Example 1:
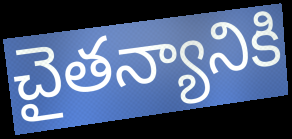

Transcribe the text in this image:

చైతన్యానికి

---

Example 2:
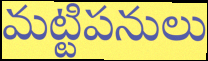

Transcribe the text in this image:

మట్టిపనులు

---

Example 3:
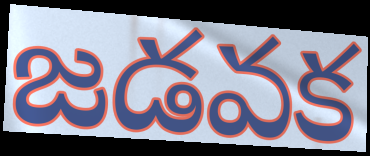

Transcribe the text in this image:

జడవక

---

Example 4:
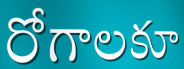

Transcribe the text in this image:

రోగాలకూ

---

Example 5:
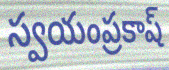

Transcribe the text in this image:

స్వయంప్రకాష్